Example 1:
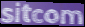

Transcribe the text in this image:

sitcom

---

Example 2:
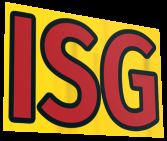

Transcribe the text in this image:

ISG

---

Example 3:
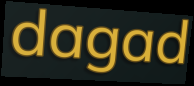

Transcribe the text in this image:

dagad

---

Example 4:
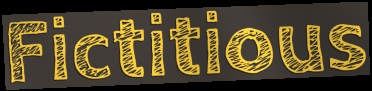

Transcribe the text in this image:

Fictitious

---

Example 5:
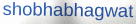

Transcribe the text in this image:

shobhabhagwat